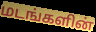
மடங்களின்